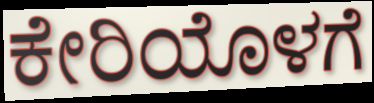
ಕೇರಿಯೊಳಗೆ